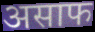
असाफ